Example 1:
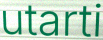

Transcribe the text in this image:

utarti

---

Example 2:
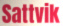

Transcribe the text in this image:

Sattvik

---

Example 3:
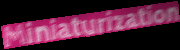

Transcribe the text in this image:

Miniaturization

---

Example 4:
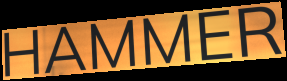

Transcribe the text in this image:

HAMMER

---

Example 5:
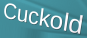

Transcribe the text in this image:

Cuckold